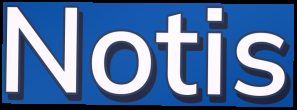
Notis